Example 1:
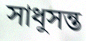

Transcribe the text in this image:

সাধুসন্ত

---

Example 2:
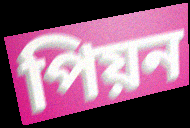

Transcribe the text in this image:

পিয়ন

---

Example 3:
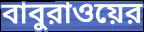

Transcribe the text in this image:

বাবুরাওয়ের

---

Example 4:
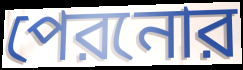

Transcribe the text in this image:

পেরনোর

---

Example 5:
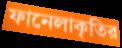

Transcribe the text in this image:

ফানেলাকৃতির